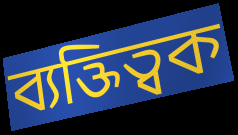
ব্যক্তিত্বক